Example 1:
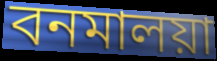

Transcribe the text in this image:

বনমালয়া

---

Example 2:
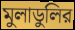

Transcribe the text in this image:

মুলাডুলির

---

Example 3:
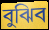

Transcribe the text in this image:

বুঝিব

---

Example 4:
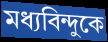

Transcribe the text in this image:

মধ্যবিন্দুকে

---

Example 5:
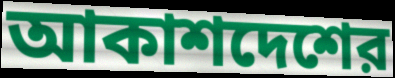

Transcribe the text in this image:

আকাশদেশের